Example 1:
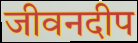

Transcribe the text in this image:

जीवनदीप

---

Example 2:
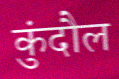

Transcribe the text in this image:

कुंदौल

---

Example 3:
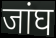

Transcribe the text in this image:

जांघ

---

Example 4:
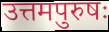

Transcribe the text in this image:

उत्तमपुरुषः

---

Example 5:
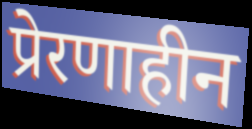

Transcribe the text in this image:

प्रेरणाहीन